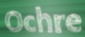
Ochre